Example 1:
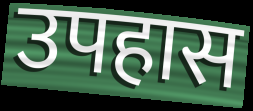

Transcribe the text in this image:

उपहास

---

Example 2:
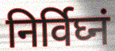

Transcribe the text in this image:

निर्विघ्नं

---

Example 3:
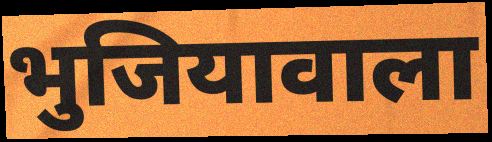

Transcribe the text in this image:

भुजियावाला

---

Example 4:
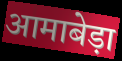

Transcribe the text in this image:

आमाबेड़ा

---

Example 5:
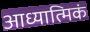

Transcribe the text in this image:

आध्यात्मिकं